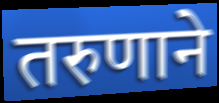
तरुणाने